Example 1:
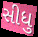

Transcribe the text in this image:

સીધુ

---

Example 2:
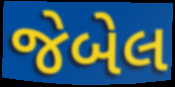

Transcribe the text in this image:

જેબેલ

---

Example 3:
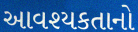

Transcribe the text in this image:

આવશ્યકતાનો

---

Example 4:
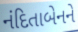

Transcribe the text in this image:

નંદિતાબેનને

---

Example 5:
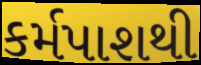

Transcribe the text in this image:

કર્મપાશથી